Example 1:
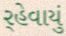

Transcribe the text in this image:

ર્‌હેવાયું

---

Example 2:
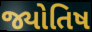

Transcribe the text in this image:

જ્યોતિષ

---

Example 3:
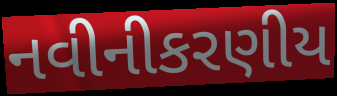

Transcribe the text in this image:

નવીનીકરણીય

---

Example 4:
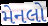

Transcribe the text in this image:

મેનલો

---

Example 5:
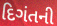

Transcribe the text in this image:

દિગંતની